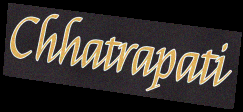
Chhatrapati